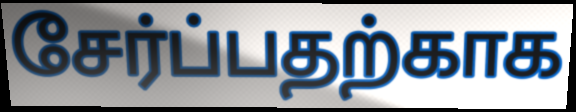
சேர்ப்பதற்காக